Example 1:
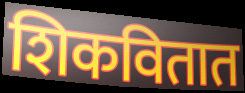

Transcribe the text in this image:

शिकवितात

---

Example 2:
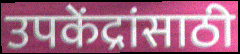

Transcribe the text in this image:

उपकेंद्रांसाठी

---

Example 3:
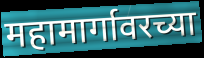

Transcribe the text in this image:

महामार्गावरच्या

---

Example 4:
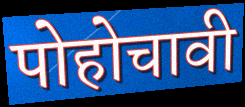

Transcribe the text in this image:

पोहोचावी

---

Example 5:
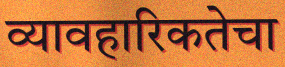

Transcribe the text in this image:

व्यावहारिकतेचा